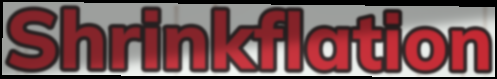
Shrinkflation